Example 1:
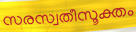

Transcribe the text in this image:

സരസ്വതീസൂക്തം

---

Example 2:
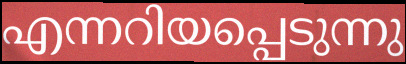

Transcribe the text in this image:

എന്നറിയപ്പെടുന്നു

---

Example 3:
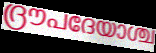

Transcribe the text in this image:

ദ്രൗപദേയാശ്ച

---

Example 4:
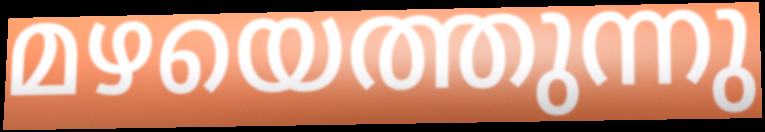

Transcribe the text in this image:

മഴയെത്തുന്നു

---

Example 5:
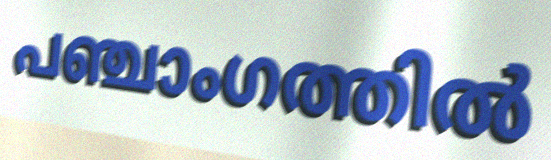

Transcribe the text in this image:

പഞ്ചാംഗത്തിൽ